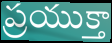
ప్రయుక్తా